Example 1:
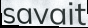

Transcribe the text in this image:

savait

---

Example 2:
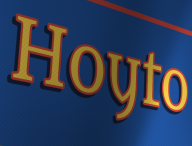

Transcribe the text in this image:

Hoyto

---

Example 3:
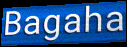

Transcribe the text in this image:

Bagaha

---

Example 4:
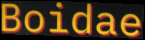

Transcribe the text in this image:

Boidae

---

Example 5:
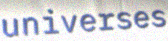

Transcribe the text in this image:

universes